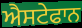
ਐਸਟੇਫਾਨ